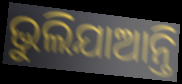
ଭୁଲିଯାଆନ୍ତି